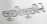
લૂછીલૂછીને